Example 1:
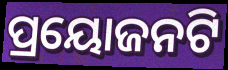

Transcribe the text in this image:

ପ୍ରୟୋଜନଟି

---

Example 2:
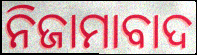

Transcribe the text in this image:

ନିଜାମାବାଦ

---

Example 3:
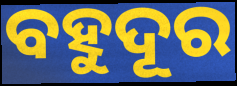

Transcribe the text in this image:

ବହୁଦୂର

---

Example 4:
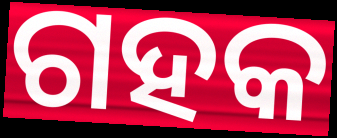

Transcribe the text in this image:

ଗହକ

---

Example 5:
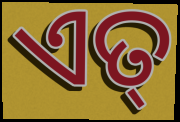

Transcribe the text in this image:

ଏତ୍